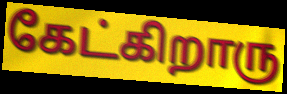
கேட்கிறாரு